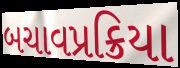
બચાવપ્રક્રિયા